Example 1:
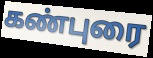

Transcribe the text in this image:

கண்புரை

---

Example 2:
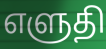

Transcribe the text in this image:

எளுதி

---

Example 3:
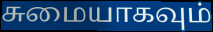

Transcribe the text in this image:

சுமையாகவும்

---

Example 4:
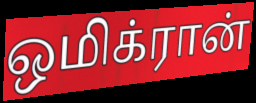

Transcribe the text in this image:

ஒமிக்ரான்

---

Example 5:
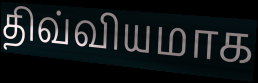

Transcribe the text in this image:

திவ்வியமாக